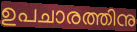
ഉപചാരത്തിനു